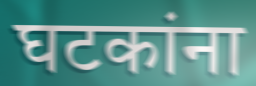
घटकांना